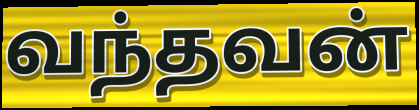
வந்தவன்